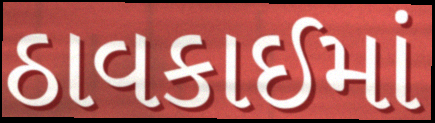
ઠાવકાઈમાં